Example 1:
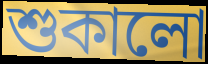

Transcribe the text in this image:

শুকালো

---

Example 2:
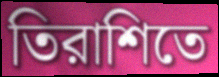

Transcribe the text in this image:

তিরাশিতে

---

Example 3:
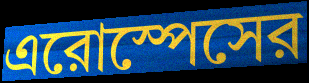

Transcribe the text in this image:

এরোস্পেসের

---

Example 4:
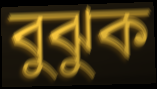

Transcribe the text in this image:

বুঝুক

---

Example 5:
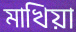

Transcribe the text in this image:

মাখিয়া